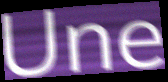
Une